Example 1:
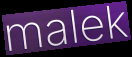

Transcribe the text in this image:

malek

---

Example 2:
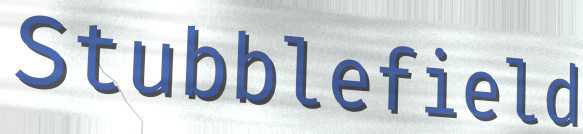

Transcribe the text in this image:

Stubblefield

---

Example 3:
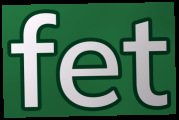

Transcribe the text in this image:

fet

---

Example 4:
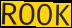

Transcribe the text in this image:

ROOK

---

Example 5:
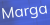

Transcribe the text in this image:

Marga